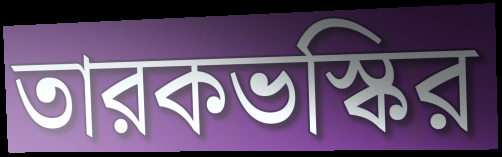
তারকভস্কির